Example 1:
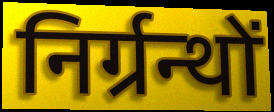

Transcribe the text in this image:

निर्ग्रन्थों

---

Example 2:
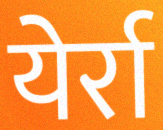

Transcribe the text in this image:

येर्रा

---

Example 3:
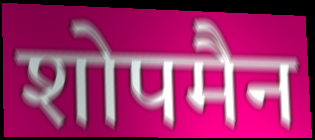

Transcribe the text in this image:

शोपमैन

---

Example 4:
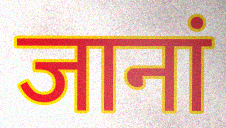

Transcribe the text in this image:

जानां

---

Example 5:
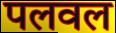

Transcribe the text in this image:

पलवल